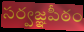
సర్వజ్ఞపీఠం